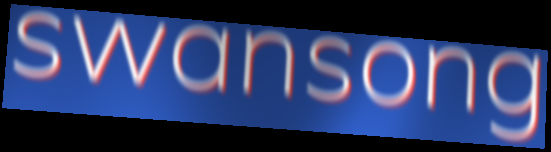
swansong